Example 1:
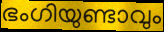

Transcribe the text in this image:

ഭംഗിയുണ്ടാവും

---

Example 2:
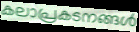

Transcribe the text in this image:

കലാപ്രകടനങ്ങൾ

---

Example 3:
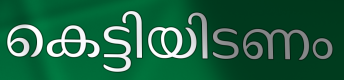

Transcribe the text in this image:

കെട്ടിയിടണം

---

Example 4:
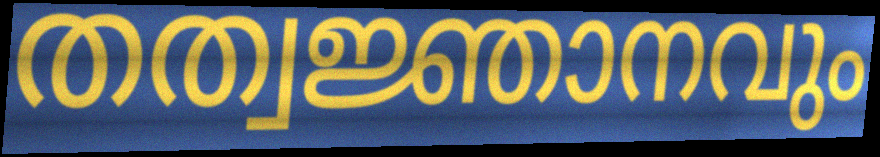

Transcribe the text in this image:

തത്വജ്ഞാനവും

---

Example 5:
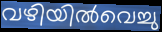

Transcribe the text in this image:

വഴിയിൽവെച്ചു